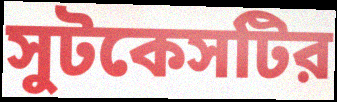
সুটকেসটির